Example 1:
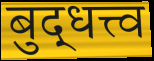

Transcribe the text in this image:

बुद्धत्त्व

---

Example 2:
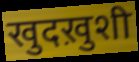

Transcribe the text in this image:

खुदख़ुशी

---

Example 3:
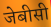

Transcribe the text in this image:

जेबीसी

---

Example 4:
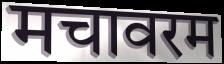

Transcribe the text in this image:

मचावरम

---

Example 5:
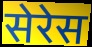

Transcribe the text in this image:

सेरेस